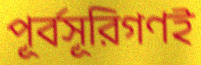
পূর্বসূরিগণই